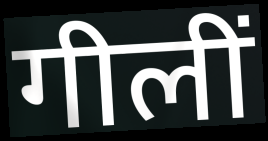
गीलीं